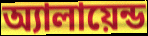
অ্যালায়েন্ড